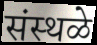
संस्थळे